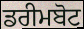
ਡਰੀਮਬੋਟ